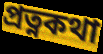
প্রত্নকথা